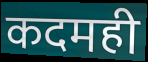
कदमही